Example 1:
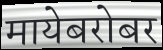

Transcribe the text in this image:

मायेबरोबर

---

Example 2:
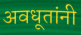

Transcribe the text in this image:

अवधूतांनी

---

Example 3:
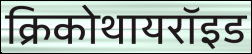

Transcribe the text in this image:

क्रिकोथायरॉइड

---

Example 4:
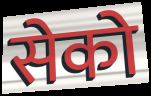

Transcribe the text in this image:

सेको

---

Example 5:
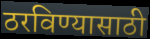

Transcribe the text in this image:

ठरविण्यासाठी